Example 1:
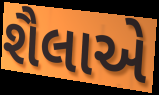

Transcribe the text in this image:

શૈલાએ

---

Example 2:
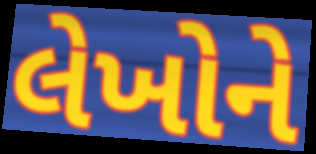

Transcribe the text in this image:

લેખોને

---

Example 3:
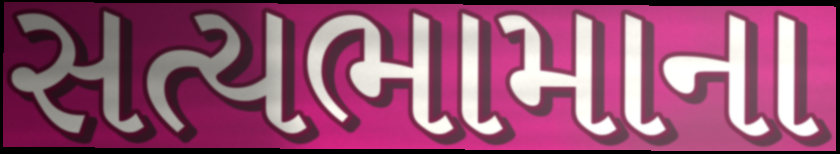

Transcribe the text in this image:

સત્યભામાના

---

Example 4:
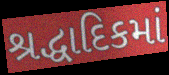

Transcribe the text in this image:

શ્રદ્ધાદિકમાં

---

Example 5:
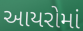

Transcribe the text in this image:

આયરોમાં